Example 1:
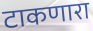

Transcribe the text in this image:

टाकणारा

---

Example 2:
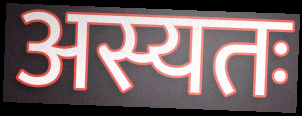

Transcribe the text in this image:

अस्यतः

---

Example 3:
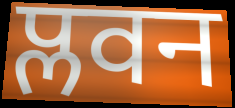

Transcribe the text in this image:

प्लवन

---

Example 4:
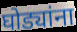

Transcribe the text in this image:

घोड्यांना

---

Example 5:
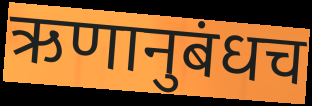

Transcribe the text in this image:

ऋणानुबंधच